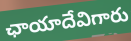
ఛాయాదేవిగారు